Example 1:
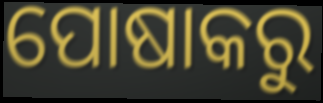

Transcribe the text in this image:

ପୋଷାକରୁ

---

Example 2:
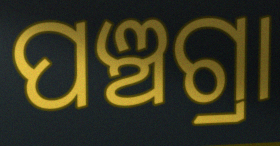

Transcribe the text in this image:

ପଞ୍ଚଗ୍ରା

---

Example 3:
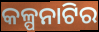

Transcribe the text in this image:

କଳ୍ପନାଟିର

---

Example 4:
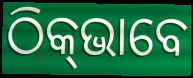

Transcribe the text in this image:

ଠିକ୍‍ଭାବେ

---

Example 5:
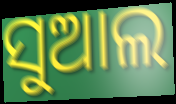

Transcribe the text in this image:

ସୁଆଲ